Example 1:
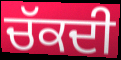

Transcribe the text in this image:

ਚੱਕਦੀ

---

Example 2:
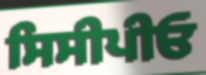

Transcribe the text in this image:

ਸਿਸੀਪੀਓ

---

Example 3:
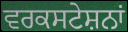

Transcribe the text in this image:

ਵਰਕਸਟੇਸ਼ਨਾਂ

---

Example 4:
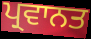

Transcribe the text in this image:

ਪ੍ਰਵਾਨਤ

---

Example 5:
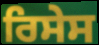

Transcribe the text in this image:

ਰਿਸੇਸ